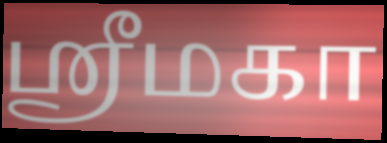
ஸ்ரீமகா